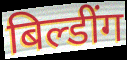
बिल्डींग